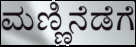
ಮಣ್ಣಿನೆಡೆಗೆ